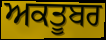
ਅਕਤੂਬਰ